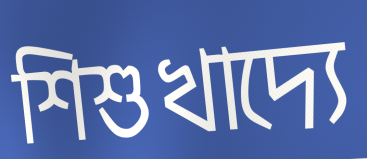
শিশুখাদ্যে